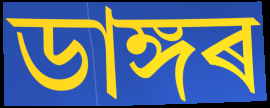
ডাঙ্গৰ